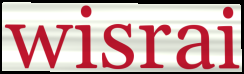
wisrai